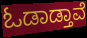
ಓಡಾಡ್ತಾವೆ